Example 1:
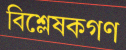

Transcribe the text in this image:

বিশ্লেষকগণ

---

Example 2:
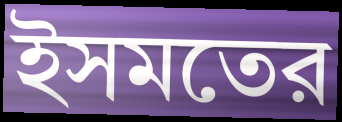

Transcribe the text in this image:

ইসমতের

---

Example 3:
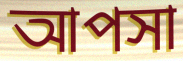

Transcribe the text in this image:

আপসা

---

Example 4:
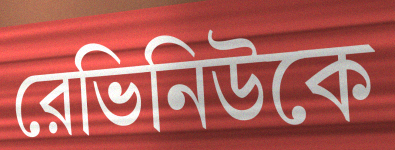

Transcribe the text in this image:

রেভিনিউকে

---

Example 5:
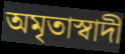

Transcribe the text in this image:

অমৃতাস্বাদী